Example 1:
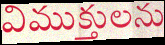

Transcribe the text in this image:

విముక్తులను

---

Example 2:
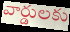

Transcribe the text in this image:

వార్డులకు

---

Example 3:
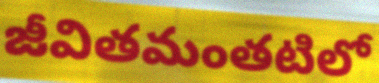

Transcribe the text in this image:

జీవితమంతటిలో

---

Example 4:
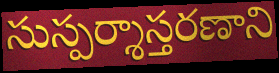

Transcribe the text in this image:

సుస్పర్శాస్తరణాని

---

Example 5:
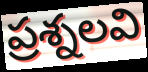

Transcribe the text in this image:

ప్రశ్నలవి